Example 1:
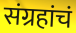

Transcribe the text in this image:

संग्रहांचं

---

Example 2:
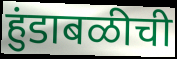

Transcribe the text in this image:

हुंडाबळीची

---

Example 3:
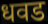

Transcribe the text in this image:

धवड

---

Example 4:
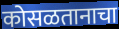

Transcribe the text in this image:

कोसळतानाचा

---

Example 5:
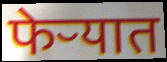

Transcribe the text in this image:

फेऱ्यात